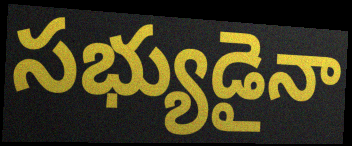
సభ్యుడైనా